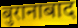
बुरानाबाद